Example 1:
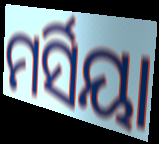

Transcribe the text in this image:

ମର୍ସିୟା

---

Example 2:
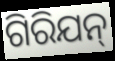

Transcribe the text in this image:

ଗିରିଯନ୍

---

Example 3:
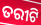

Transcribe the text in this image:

ତରୀଟି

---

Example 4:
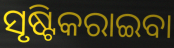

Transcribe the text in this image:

ସୃଷ୍ଟିକରାଇବା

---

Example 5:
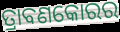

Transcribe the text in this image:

ତ୍ରାବଣକୋରର